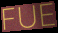
FUE